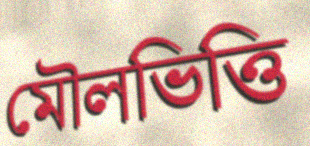
মৌলভিত্তি